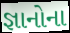
જ્ઞાનોના